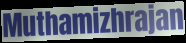
Muthamizhrajan